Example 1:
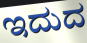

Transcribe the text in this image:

ಇದುದ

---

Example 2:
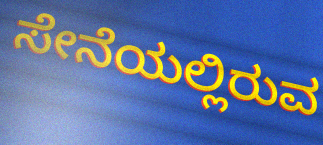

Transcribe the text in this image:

ಸೇನೆಯಲ್ಲಿರುವ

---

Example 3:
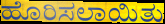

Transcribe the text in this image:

ಹೊರಿಸಲಾಯಿತು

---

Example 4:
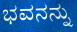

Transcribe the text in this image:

ಭವನನ್ನು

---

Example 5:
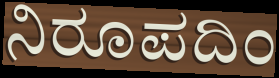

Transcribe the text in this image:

ನಿರೂಪದಿಂ